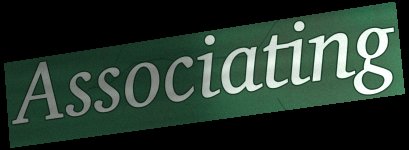
Associating